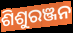
ଶିଶୁରଞ୍ଜନ